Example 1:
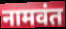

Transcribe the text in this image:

नामवंत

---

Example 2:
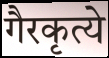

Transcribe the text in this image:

गैरकृत्ये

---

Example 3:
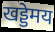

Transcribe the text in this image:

खड्डेमय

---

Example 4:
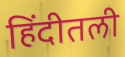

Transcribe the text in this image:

हिंदीतली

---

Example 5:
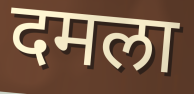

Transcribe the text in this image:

दमला